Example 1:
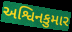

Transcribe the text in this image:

અશ્વિનકુમાર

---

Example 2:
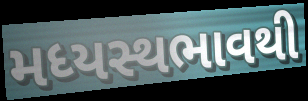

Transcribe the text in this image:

મધ્યસ્થભાવથી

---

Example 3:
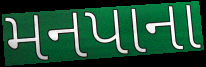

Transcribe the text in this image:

મનપાના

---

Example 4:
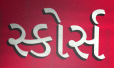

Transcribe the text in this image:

સ્કોર્સ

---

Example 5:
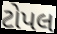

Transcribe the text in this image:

ટોપલ